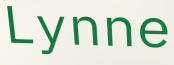
Lynne